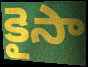
కైసా